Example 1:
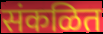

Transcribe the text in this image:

संकळित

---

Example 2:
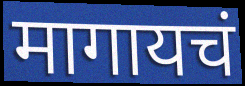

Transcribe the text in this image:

मागायचं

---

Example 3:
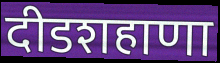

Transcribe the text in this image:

दीडशहाणा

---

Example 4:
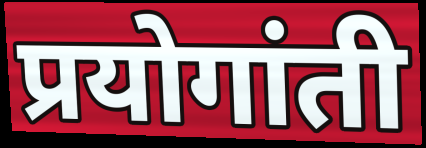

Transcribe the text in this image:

प्रयोगांती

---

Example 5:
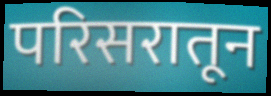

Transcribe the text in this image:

परिसरातून